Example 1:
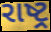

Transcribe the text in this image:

રાષ્ટ્ર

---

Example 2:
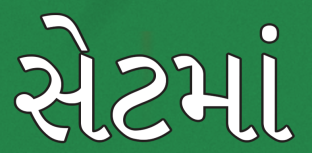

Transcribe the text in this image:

સેટમાં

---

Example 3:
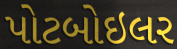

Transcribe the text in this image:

પોટબોઇલર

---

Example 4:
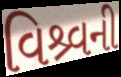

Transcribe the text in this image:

વિશ્ર્વની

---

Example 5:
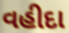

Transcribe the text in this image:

વહીદા